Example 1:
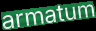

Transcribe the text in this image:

armatum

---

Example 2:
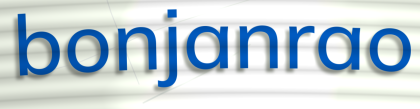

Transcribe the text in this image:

bonjanrao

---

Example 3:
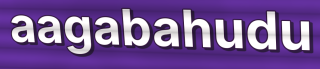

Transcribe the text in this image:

aagabahudu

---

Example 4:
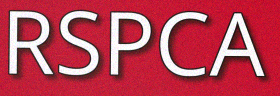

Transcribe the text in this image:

RSPCA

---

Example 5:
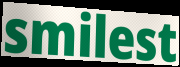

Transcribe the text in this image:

smilest